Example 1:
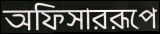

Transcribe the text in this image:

অফিসাররূপে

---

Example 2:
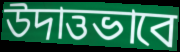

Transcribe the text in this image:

উদাত্তভাবে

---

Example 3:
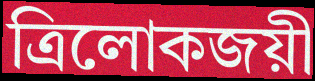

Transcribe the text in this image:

ত্রিলোকজয়ী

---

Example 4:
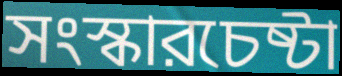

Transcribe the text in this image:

সংস্কারচেষ্টা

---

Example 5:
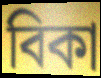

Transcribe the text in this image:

বিকা